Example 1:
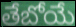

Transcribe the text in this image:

తేబోయే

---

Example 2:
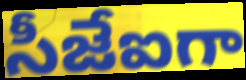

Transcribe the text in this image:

సీజేఐగా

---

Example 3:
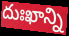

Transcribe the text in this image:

దుఃఖాన్ని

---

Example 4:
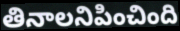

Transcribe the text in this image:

తినాలనిపించింది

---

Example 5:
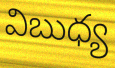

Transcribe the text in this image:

విబుధ్య